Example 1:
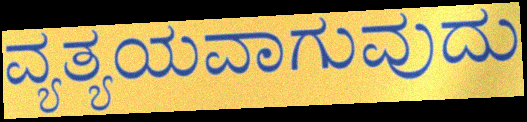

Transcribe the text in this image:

ವ್ಯತ್ಯಯವಾಗುವುದು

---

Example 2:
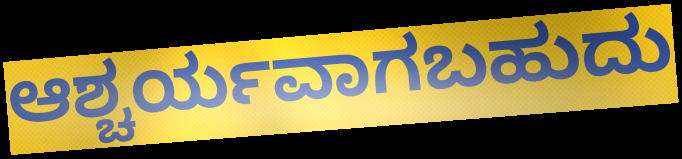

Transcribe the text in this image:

ಆಶ್ಚರ್ಯವಾಗಬಹುದು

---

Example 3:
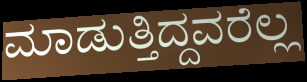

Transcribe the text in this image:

ಮಾಡುತ್ತಿದ್ದವರೆಲ್ಲ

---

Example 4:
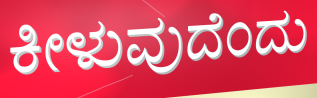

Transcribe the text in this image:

ಕೀಳುವುದೆಂದು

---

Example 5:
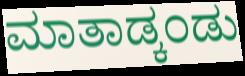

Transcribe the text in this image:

ಮಾತಾಡ್ಕಂಡು